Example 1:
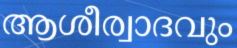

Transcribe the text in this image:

ആശീര്വാദവും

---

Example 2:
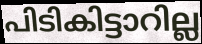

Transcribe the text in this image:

പിടികിട്ടാറില്ല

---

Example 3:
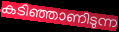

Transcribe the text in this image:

കടിഞ്ഞാണിടുന്ന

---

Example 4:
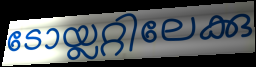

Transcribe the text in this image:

ടോയ്ലറ്റിലേക്കു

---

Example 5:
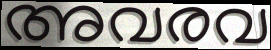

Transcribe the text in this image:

അവരവ